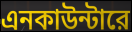
এনকাউন্টারে